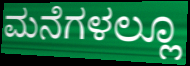
ಮನೆಗಳಲ್ಲೂ